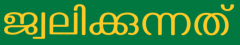
ജ്വലിക്കുന്നത്